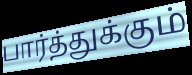
பார்த்துக்கும்